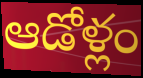
ఆడోళ్లం